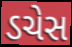
ડચેસ